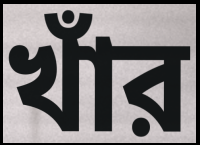
খাঁর